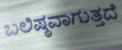
ಬಲಿಷ್ಠವಾಗುತ್ತದೆ